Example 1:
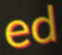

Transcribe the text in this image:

ed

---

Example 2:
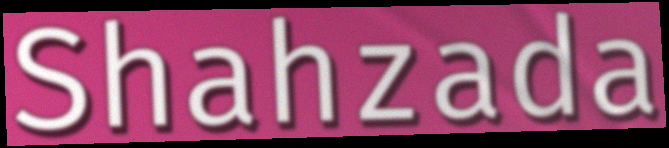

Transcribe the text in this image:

Shahzada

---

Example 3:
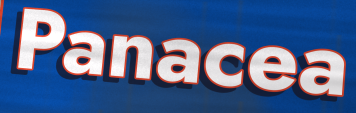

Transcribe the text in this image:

Panacea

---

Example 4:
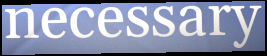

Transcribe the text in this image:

necessary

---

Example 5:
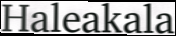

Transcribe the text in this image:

Haleakala